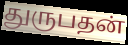
துருபதன்